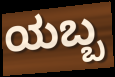
ಯಬ್ಬ